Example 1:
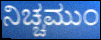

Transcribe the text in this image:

ನಿಚ್ಚಮುಂ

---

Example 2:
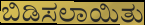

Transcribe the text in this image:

ಬಿಡಿಸಲಾಯಿತು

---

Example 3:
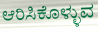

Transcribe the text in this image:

ಆರಿಸಿಕೊಳ್ಳುವ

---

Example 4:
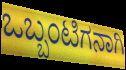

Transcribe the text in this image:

ಒಬ್ಬಂಟಿಗನಾಗಿ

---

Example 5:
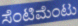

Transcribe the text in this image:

ಸೆಂಟಿಮೆಂಟು